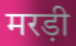
मरड़ी